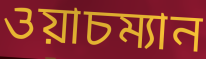
ওয়াচম্যান